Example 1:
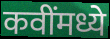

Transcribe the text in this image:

कवींमध्ये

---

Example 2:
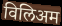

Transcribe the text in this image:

विलिअम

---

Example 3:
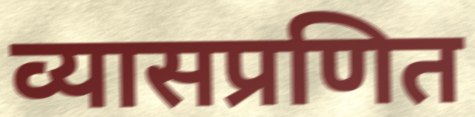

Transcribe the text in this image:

व्यासप्रणित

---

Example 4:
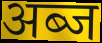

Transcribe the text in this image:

अब्ज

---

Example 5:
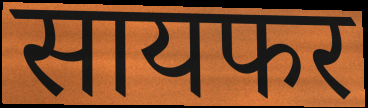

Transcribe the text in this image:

सायफर